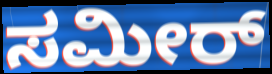
ಸಮೀರ್